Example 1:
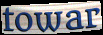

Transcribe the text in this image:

towar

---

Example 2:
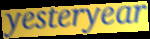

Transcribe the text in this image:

yesteryear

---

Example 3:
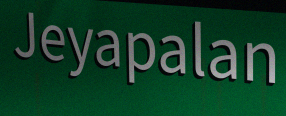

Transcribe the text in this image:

Jeyapalan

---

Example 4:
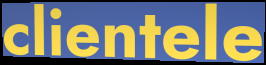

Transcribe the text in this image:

clientele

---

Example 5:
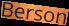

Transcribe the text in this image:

Berson